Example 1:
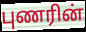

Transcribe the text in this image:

புணரின்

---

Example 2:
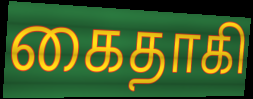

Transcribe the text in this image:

கைதாகி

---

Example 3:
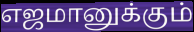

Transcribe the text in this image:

எஜமானுக்கும்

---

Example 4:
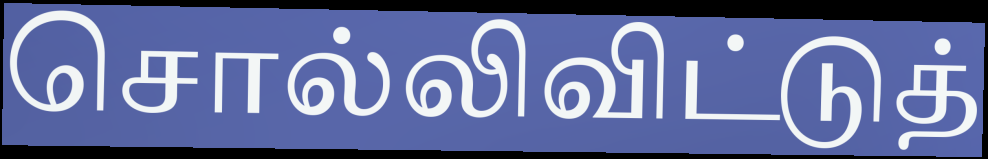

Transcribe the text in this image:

சொல்லிவிட்டுத்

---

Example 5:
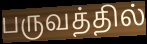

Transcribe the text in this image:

பருவத்தில்